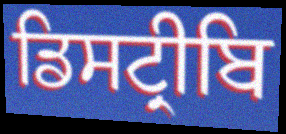
ਡਿਸਟ੍ਰੀਬਿ